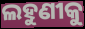
ଲହୁଣୀକୁ